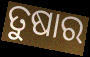
ତୁଷାର